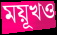
ময়ূখও